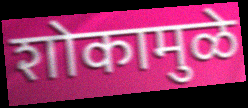
शोकामुळे